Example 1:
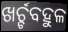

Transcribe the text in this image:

ଖର୍ଚ୍ଚବହୁଳ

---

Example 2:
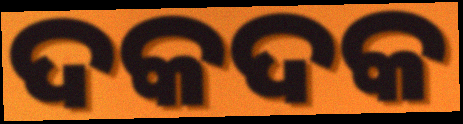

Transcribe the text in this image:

ଦକଦକ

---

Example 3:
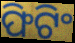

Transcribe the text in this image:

ଫିଟିଂ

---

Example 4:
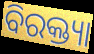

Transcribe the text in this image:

ବିରକ୍ତ୍ୟା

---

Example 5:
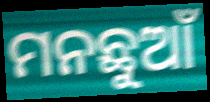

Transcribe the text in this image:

ମନଛୁଆଁ